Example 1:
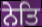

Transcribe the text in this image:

ਨੇਤਿ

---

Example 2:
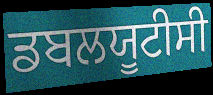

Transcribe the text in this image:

ਡਬਲਯੂਟੀਸੀ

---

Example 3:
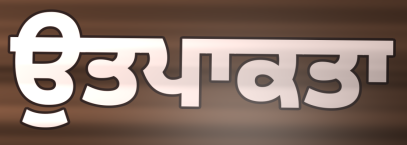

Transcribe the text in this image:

ਉਤਪਾਕਤਾ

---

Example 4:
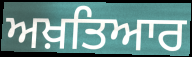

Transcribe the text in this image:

ਅਖ਼ਤਿਆਰ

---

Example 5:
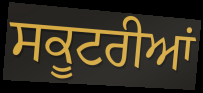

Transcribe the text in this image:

ਸਕੂਟਰੀਆਂ